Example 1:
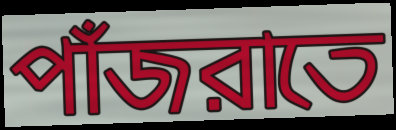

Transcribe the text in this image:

পাঁজরাতে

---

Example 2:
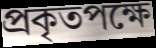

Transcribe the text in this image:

প্রকৃতপক্ষে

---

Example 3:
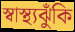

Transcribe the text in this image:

স্বাস্থ্যঝুঁকি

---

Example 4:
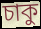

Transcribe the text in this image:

চাকু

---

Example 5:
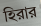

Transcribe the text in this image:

হিরার